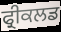
ਫ੍ਰੀਕਲਡ